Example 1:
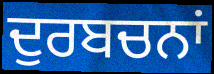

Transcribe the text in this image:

ਦੁਰਬਚਨਾਂ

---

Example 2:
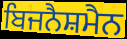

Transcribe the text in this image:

ਬਿਜਨੈਸ਼ਮੈਨ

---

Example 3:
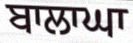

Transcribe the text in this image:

ਬਾਲਾਘਾ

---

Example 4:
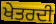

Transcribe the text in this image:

ਖੇਤਰਦੀ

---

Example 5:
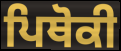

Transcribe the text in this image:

ਪਿਥੋਕੀ